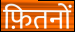
फ़ितनों